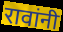
रावांनी